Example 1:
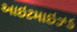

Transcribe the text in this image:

આઇટમાઇઝ્ડ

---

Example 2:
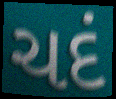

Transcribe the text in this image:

ચદં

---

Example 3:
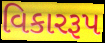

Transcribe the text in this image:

વિકારરૂપ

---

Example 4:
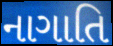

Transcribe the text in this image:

નાગાતિ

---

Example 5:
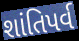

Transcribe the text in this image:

શાંતિપર્વ